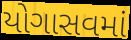
યોગાસવમાં